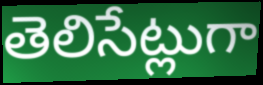
తెలిసేట్లుగా